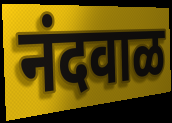
नंदवाळ